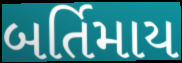
બર્તિમાય